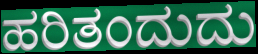
ಹರಿತಂದುದು